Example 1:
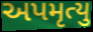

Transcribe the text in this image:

અપમૃત્યુ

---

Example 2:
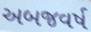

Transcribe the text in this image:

અબજવર્ષ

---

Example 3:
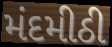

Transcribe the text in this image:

મંદમીઠી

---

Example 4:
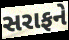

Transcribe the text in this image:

સરાફને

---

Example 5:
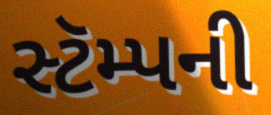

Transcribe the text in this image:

સ્ટૅમ્પની